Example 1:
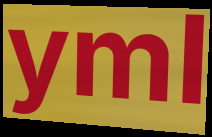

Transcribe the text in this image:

yml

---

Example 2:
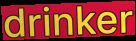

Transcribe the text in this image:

drinker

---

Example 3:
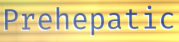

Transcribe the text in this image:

Prehepatic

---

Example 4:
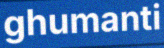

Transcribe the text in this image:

ghumanti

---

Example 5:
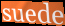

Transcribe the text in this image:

suede